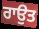
ਰਾਉਤ